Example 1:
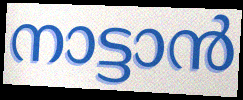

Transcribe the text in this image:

നാട്ടാൻ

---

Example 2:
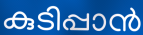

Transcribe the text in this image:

കുടിപ്പാൻ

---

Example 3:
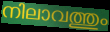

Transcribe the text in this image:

നിലാവത്തും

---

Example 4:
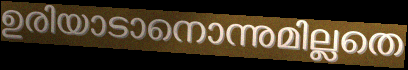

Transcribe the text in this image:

ഉരിയാടാനൊന്നുമില്ലതെ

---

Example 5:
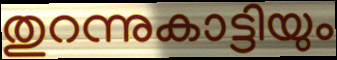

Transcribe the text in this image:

തുറന്നുകാട്ടിയും